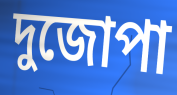
দুজোপা